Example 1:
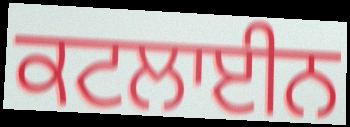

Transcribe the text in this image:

ਕਟਲਾਈਨ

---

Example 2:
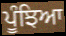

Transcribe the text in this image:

ਪੂੰਝਿਆ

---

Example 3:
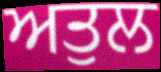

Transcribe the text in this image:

ਅਤੁਲ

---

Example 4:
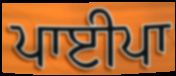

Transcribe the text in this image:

ਪਾਈਪਾ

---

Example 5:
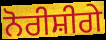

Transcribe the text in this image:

ਨੋਰੀਸ਼ੀਗੇ